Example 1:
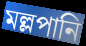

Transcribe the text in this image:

মল্লপানি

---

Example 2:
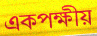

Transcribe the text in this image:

একপক্ষীয়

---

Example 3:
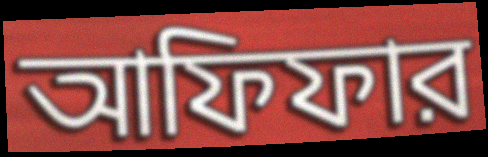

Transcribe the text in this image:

আফিফার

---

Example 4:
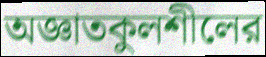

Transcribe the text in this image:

অজ্ঞাতকুলশীলের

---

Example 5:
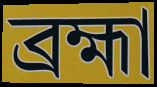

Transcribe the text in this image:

ব্রহ্মা